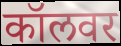
कॉलवर